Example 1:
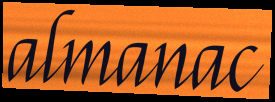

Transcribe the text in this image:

almanac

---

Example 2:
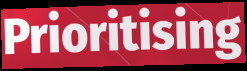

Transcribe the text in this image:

Prioritising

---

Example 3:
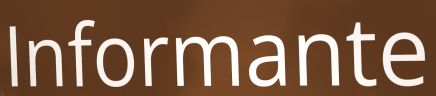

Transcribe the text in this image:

Informante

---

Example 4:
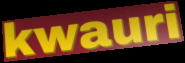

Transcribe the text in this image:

kwauri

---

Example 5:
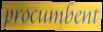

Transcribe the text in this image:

procumbent